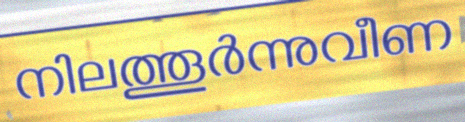
നിലത്തൂർന്നുവീണ